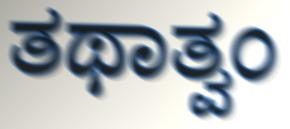
ತಥಾತ್ವಂ